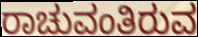
ರಾಚುವಂತಿರುವ